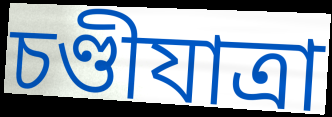
চণ্ডীযাত্রা